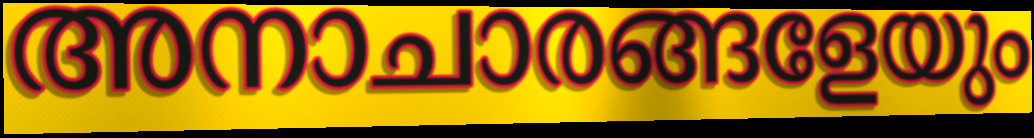
അനാചാരങ്ങളേയും